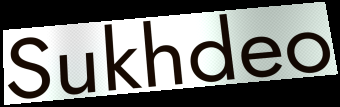
Sukhdeo